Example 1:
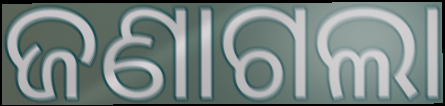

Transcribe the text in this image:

ଜଣାଗଲା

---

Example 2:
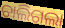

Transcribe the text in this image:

ଚାଲିଗଲା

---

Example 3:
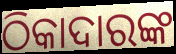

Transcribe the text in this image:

ଠିକାଦାରଙ୍କ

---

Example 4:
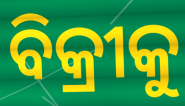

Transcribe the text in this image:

ବିକ୍ରୀକୁ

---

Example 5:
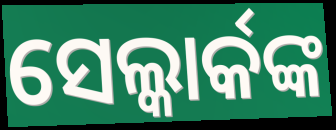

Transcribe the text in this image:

ସେଲ୍କାର୍କଙ୍କ